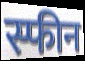
स्फीन